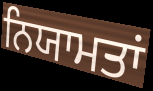
ਨਿਯਾਮਤਾਂ